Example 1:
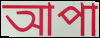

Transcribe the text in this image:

আপা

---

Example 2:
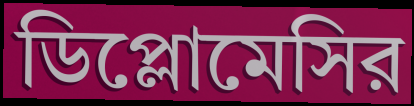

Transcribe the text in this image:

ডিপ্লোমেসির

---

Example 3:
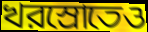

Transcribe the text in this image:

খরস্রোতেও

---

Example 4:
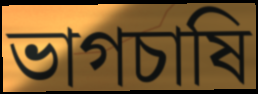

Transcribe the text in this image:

ভাগচাষি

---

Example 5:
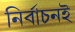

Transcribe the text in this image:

নির্বাচনই